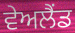
ਵੇਅਲੈਂਡ